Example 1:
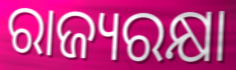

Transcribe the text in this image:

ରାଜ୍ୟରକ୍ଷା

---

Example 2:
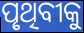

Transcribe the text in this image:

ପୃଥିବୀକୁ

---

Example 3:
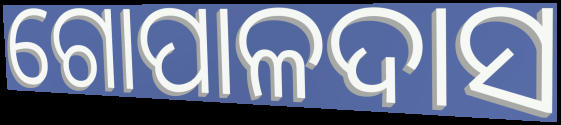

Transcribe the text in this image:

ଗୋପାଳଦାସ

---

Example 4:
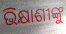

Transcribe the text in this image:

ଭିକ୍ଷାଶୀଙ୍କୁ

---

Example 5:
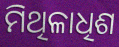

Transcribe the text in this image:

ମିଥିଳାଧିଶ